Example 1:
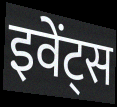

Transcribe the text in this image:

इवेंट्स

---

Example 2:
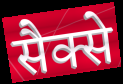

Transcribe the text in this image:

सैक्से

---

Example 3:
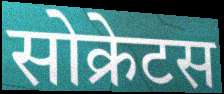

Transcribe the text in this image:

सोक्रेटस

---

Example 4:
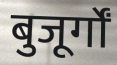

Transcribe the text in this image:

बुजूर्गों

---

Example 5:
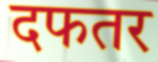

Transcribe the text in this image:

दफतर